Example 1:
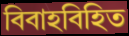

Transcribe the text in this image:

বিবাহবিহিত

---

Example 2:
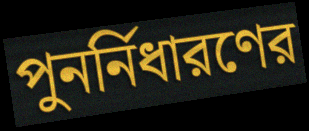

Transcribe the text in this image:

পুনর্নিধারণের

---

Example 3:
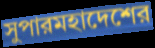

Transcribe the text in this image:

সুপারমহাদেশের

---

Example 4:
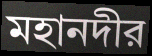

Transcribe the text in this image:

মহানদীর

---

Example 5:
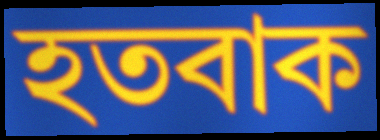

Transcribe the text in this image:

হতবাক